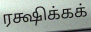
ரக்ஷிக்கக்